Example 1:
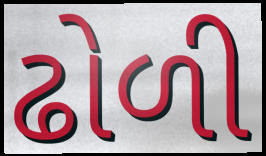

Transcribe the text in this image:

ઢોળી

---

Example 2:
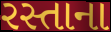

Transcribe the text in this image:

રસ્તાના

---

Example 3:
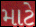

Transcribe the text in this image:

માટે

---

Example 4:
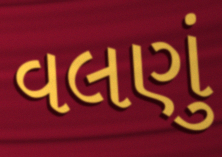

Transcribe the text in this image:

વલણું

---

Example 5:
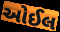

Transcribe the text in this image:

ઓઈલ